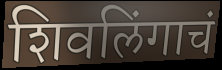
शिवलिंगाचं